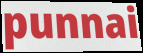
punnai